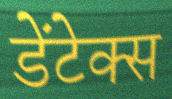
डेंटेक्स